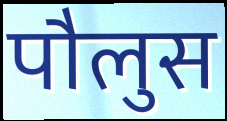
पौलुस